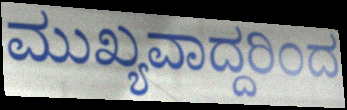
ಮುಖ್ಯವಾದ್ದರಿಂದ